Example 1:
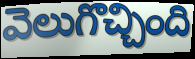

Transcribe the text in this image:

వెలుగొచ్చింది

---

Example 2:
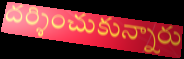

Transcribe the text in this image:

దర్శించుకున్నారు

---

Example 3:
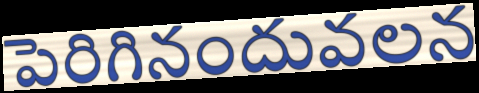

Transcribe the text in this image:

పెరిగినందువలన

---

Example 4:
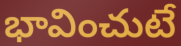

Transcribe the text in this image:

భావించుటే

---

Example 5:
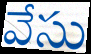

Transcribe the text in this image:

వేసు